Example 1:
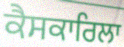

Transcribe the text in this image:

ਕੈਸਕਾਰਿਲਾ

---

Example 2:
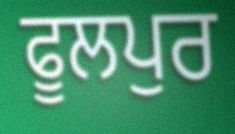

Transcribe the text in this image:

ਫੂਲਪੁਰ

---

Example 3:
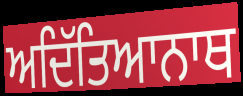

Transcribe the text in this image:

ਅਦਿੱਤਿਆਨਾਥ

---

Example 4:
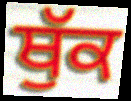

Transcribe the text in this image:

ਥੁੱਕ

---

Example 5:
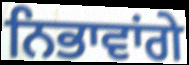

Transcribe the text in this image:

ਨਿਭਾਵਾਂਗੇ